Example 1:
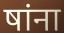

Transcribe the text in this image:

षांना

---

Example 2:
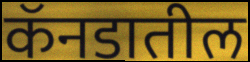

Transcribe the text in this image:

कॅनडातील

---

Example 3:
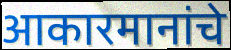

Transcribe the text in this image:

आकारमानांचे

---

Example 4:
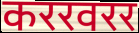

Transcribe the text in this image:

कररवरर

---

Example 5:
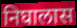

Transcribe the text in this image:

निघालास